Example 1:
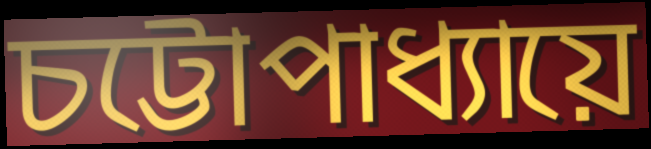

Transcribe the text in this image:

চট্টোপাধ্যায়ে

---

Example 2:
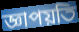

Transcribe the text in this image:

জ্ঞাপয়তি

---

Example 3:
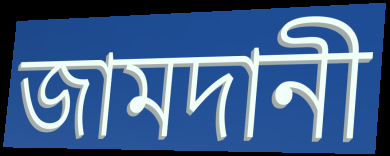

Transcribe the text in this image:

জামদানী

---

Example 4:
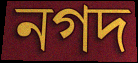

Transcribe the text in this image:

নগদ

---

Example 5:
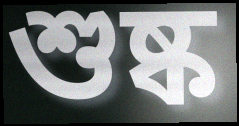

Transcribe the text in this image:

শুষ্ক